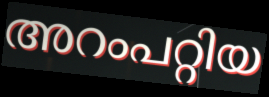
അറംപറ്റിയ